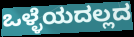
ಒಳ್ಳೆಯದಲ್ಲದ